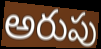
అరుపు